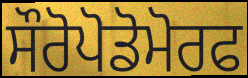
ਸੌਰੋਪੋਡੋਮੋਰਫ